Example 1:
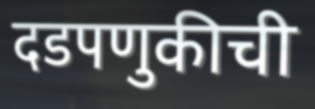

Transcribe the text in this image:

दडपणुकीची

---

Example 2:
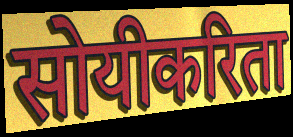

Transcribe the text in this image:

सोयीकरिता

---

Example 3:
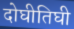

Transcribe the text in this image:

दोघीतिघी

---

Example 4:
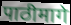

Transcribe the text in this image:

पाठीमागे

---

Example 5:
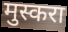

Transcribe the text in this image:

मुस्करा